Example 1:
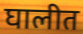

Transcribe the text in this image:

घालीत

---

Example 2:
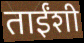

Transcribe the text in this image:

ताईंशी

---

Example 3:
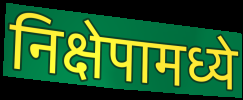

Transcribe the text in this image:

निक्षेपामध्ये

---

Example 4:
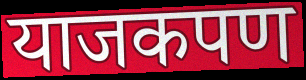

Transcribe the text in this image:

याजकपण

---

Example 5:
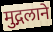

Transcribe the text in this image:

मुद्गलाने